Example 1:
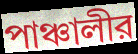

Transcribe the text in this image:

পাঞ্চালীর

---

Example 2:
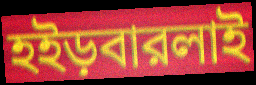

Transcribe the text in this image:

হইড়বারলাই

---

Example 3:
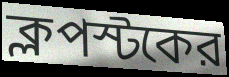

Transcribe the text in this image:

ক্লপস্টকের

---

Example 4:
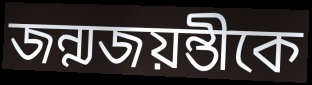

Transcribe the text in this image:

জন্মজয়ন্তীকে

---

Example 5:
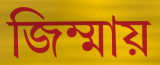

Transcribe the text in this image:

জিম্মায়